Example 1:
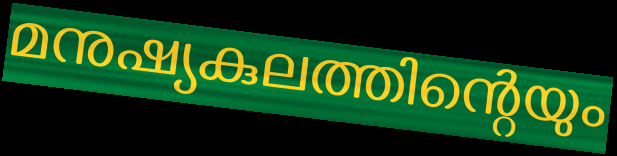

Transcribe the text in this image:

മനുഷ്യകുലത്തിന്റെയും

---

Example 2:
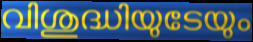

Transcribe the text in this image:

വിശുദ്ധിയുടേയും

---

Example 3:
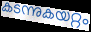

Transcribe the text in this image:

കടന്നുകയറ്റം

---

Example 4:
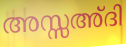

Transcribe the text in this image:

അസ്സഅ്ദി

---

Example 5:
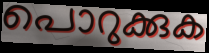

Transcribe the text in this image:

പൊറുക്കുക